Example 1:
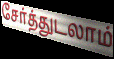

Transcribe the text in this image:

சேர்த்துடலாம்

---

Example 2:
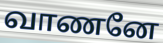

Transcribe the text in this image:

வாணனே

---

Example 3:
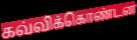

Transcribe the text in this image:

கவ்விக்கொண்டன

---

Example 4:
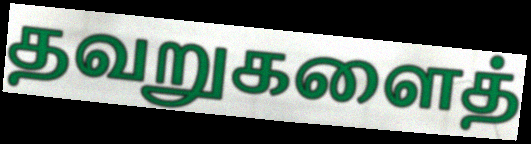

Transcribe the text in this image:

தவறுகளைத்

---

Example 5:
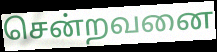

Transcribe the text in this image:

சென்றவனை